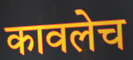
कावलेच